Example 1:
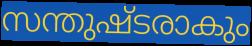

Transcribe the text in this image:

സന്തുഷ്ടരാകും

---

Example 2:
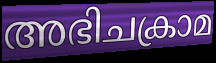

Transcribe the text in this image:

അഭിചക്രാമ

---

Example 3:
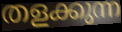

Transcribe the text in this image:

തളക്കുന്ന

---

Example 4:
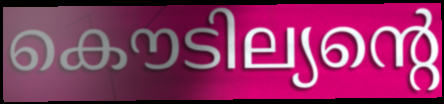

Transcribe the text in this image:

കൌടില്യന്റെ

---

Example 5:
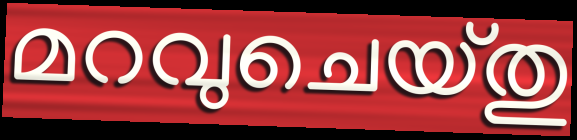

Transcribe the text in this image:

മറവുചെയ്തു